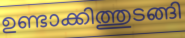
ഉണ്ടാക്കിത്തുടങ്ങി